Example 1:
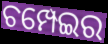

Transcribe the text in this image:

ଚମ୍ପେଇର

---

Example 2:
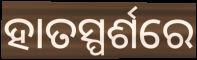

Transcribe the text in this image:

ହାତସ୍ପର୍ଶରେ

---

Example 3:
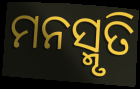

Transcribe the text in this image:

ମନସ୍ମୃତି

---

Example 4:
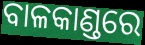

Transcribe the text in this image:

ବାଳକାଣ୍ଡରେ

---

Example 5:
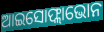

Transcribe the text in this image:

ଆଇସୋଫ୍ଲାଭୋନ